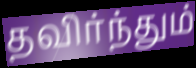
தவிர்ந்தும்